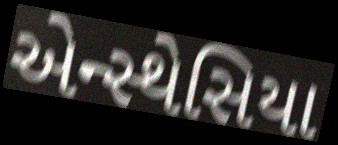
એન્સ્થેસિયા